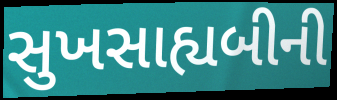
સુખસાહ્યબીની